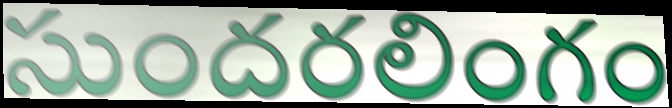
సుందరలింగం